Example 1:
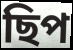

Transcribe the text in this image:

ছিপ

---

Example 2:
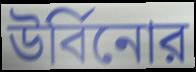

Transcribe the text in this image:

উর্বিনোর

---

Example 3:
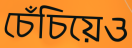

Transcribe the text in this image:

চেঁচিয়েও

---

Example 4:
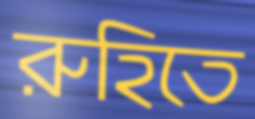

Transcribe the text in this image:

রুহিতে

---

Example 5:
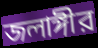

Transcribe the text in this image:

জলাঙ্গীর